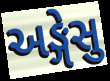
અઙ્ગેસુ